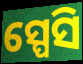
ସ୍ପେସି